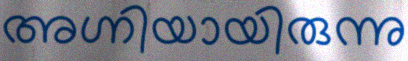
അഗ്നിയായിരുന്നു